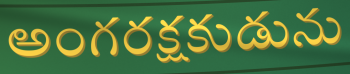
అంగరక్షకుడును